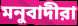
মনুবাদীরা